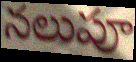
నలుపూ